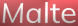
Malte